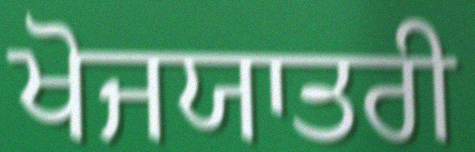
ਖੋਜਯਾਤਰੀ